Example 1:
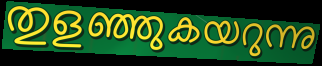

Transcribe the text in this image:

തുളഞ്ഞുകയറുന്നു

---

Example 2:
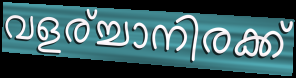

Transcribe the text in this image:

വളര്ച്ചാനിരക്ക്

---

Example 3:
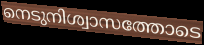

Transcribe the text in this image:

നെടുനിശ്വാസത്തോടെ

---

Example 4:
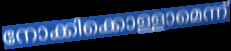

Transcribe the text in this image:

നോക്കിക്കൊള്ളാമെന്ന്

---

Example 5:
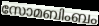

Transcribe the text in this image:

സോമബിംബം